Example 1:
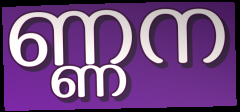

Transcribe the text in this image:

ണ്ണന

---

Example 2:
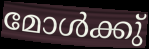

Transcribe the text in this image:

മോൾക്കു്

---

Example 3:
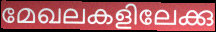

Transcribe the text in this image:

മേഖലകളിലേക്കു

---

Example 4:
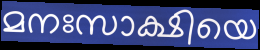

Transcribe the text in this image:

മനഃസാക്ഷിയെ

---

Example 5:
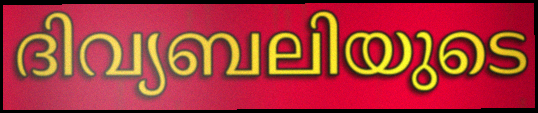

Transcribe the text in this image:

ദിവ്യബലിയുടെ